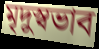
মৃদুস্বভাব